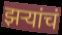
झर्‍यांचं